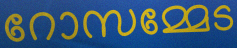
റോസമ്മേട